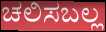
ಚಲಿಸಬಲ್ಲ